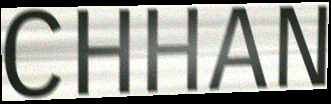
CHHAN